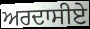
ਅਰਦਾਸੀਏ